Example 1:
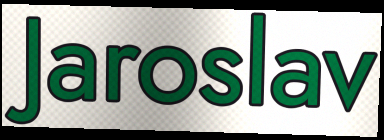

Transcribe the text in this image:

Jaroslav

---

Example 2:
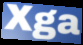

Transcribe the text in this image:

Xga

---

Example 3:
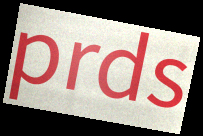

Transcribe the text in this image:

prds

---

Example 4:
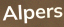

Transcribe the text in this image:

Alpers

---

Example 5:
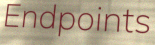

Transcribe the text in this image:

Endpoints